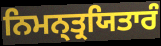
ਨਿਮਨ੍ਤ੍ਰਯਿਤਾਰੰ